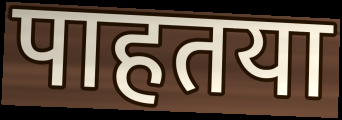
पाहतया